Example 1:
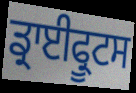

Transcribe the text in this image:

ਡ੍ਰਾਈਫ੍ਰੂਟਸ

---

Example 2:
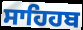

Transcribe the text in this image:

ਸਾਹਿਹਬ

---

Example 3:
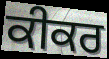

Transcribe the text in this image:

ਕੀਕਰ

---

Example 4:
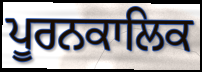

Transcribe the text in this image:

ਪੂਰਨਕਾਲਿਕ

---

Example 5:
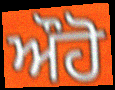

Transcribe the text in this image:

ਔਹੋ